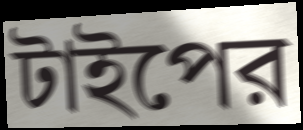
টাইপের